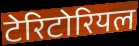
टेरिटोरियल